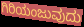
ಗಿರಿಯಂಜುವುದು